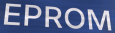
EPROM